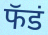
फॅडं